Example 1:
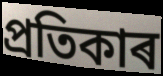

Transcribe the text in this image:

প্ৰতিকাৰ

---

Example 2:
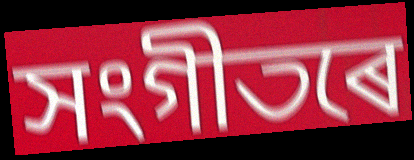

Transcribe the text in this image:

সংগীতৰে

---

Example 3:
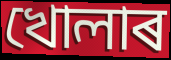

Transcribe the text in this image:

খোলাৰ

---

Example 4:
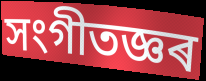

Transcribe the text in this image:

সংগীতজ্ঞৰ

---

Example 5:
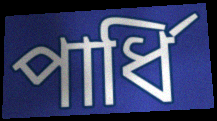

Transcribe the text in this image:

পাৰ্ধি